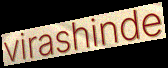
virashinde